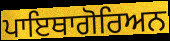
ਪਾਇਥਾਗੋਰਿਅਨ